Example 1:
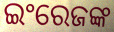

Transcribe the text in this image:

ଇଂରେଜଙ୍କ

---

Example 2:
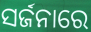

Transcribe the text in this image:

ସର୍ଜନାରେ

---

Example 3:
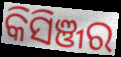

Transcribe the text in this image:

କିସିଞ୍ଜର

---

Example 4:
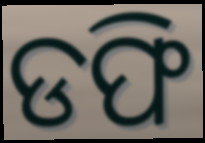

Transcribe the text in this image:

ଡଫି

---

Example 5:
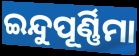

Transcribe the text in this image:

ଇନ୍ଦୁପୂର୍ଣ୍ଣିମା